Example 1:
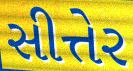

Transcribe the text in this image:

સીત્તેર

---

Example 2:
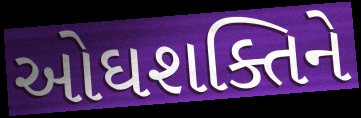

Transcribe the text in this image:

ઓઘશક્તિને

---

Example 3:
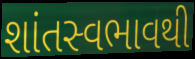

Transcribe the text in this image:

શાંતસ્વભાવથી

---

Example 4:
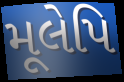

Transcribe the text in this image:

મૂલેપિ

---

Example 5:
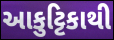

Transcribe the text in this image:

આકુટ્ટિકાથી